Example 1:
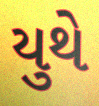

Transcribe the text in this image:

યુથે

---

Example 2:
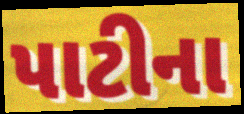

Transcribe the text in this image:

પાટીના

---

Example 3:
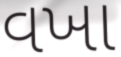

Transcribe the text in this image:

વખા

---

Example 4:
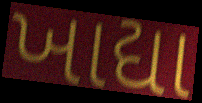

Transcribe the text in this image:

ખાદ્યા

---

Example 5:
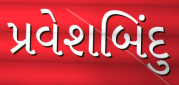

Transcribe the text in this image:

પ્રવેશબિંદુ